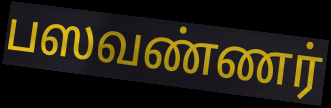
பஸவண்ணர்